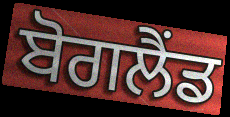
ਬੋਗਲੈਂਡ